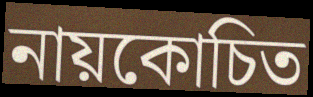
নায়কোচিত